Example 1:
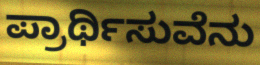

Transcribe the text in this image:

ಪ್ರಾರ್ಥಿಸುವೆನು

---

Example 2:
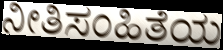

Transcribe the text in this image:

ನೀತಿಸಂಹಿತೆಯ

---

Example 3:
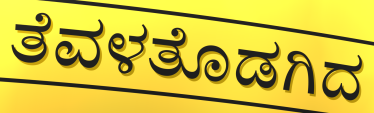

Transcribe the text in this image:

ತೆವಳತೊಡಗಿದ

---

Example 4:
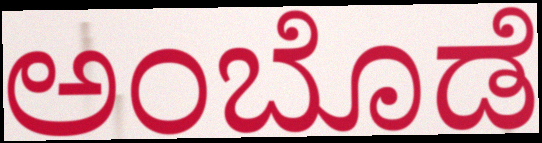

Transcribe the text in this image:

ಅಂಬೊಡೆ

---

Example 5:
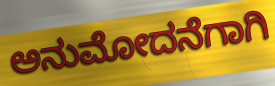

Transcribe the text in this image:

ಅನುಮೋದನೆಗಾಗಿ